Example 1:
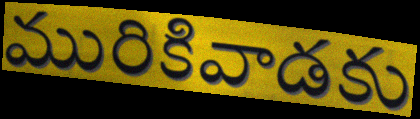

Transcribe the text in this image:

మురికివాడకు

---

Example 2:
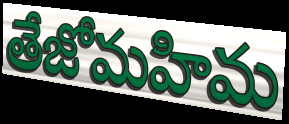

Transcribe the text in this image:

తేజోమహిమ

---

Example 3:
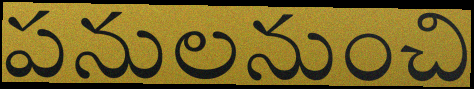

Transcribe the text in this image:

పనులనుంచి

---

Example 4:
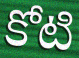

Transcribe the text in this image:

కోటి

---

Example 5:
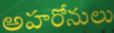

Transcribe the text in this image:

అహరోనులు